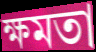
ক্ষমতা